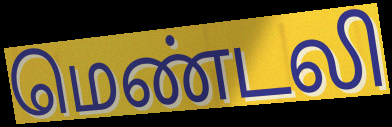
மெண்டலி